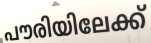
പൗരിയിലേക്ക്